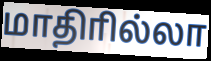
மாதிரில்லா